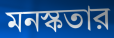
মনস্কতার